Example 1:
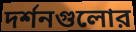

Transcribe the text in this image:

দর্শনগুলোর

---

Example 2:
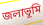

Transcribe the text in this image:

জলাভূমি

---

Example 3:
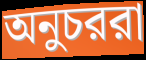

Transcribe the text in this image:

অনুচররা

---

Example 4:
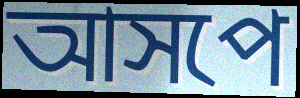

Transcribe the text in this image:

আসপে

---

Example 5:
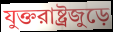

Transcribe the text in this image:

যুক্তরাষ্ট্রজুড়ে